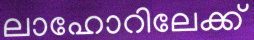
ലാഹോറിലേക്ക്